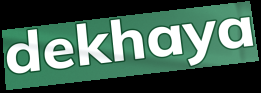
dekhaya